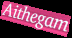
Aithegam